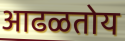
आढळतोय